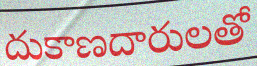
దుకాణదారులతో